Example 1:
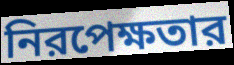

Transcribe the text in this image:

নিরপেক্ষতার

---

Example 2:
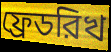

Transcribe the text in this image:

ফ্রেডরিখ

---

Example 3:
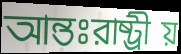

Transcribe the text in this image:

আন্তঃরাষ্ট্রীয়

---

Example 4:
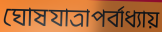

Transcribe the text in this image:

ঘোষযাত্রাপর্বাধ্যায়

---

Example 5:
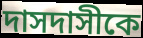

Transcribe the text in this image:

দাসদাসীকে